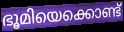
ഭൂമിയെക്കൊണ്ട്